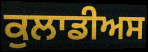
ਕੁਲਾਡੀਅਸ